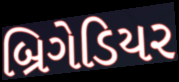
બ્રિગેડિયર